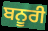
ਬਨੂਰੀ